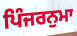
ਪਿੰਜਰਨੁਮਾ